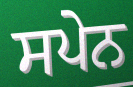
ਸਪੇਨ